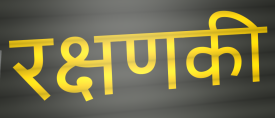
रक्षणकी